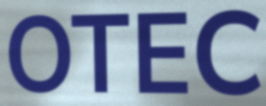
OTEC